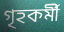
গৃহকর্মী